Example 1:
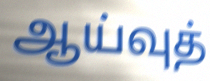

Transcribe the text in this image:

ஆய்வுத்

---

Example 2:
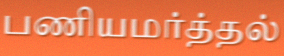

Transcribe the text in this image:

பணியமர்த்தல்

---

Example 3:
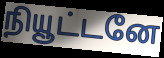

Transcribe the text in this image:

நியூட்டனே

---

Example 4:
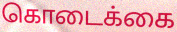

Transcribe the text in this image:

கொடைக்கை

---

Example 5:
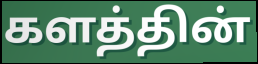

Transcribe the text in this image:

களத்தின்